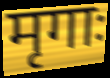
मृगाः